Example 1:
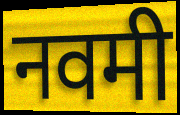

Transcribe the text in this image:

नवमी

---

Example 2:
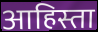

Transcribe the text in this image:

आहिस्‍ता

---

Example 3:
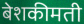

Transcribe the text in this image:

बेशकीमती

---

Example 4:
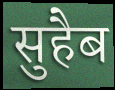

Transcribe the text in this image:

सुहैब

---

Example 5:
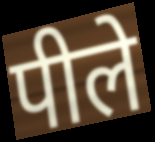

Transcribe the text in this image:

पीले